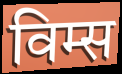
विम्स